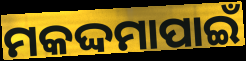
ମକଦ୍ଦମାପାଇଁ